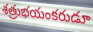
శత్రుభయంకరుడూ